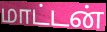
மாட்டன்